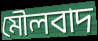
মৌলবাদ